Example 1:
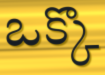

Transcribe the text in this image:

ఒక్కొ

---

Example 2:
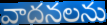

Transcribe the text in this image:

వాదనలను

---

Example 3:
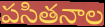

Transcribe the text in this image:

పసితనాల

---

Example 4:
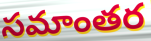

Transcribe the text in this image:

సమాంతర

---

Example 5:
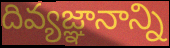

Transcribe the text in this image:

దివ్యజ్ఞానాన్ని